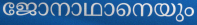
ജോനാഥാനെയും